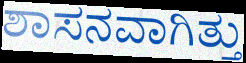
ಶಾಸನವಾಗಿತ್ತು